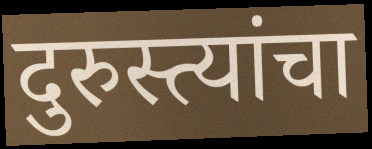
दुरुस्त्यांचा